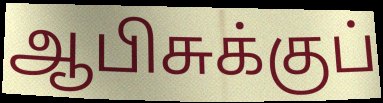
ஆபிசுக்குப்